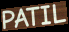
PATIL